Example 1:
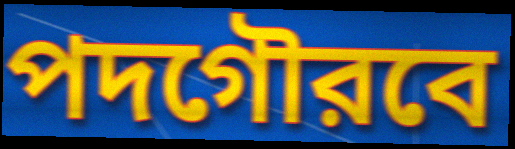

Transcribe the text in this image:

পদগৌরবে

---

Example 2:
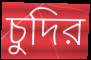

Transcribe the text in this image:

চুদির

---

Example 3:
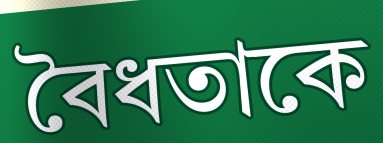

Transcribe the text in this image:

বৈধতাকে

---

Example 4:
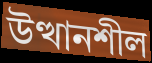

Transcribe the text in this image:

উত্থানশীল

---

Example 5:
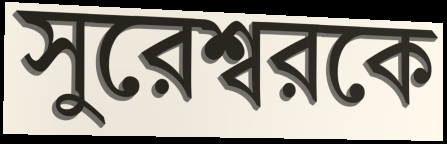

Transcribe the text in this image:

সুরেশ্বরকে